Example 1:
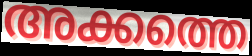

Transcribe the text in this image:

അക്കത്തെ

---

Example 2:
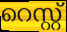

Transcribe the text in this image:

റെസ്റ്റ്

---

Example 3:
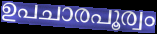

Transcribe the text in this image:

ഉപചാരപൂര്വം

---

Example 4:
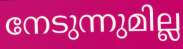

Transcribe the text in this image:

നേടുന്നുമില്ല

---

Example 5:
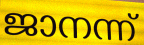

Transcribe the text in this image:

ജാനന്ന്